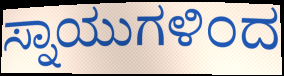
ಸ್ನಾಯುಗಳಿಂದ